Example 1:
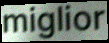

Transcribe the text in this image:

miglior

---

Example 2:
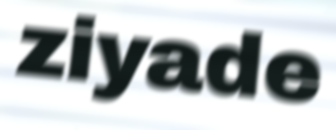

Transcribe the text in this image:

ziyade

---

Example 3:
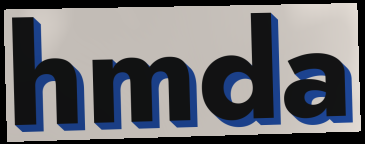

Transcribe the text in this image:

hmda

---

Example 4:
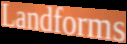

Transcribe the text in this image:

Landforms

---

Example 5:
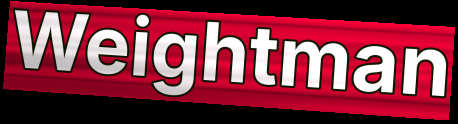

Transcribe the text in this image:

Weightman